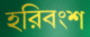
হরিবংশ